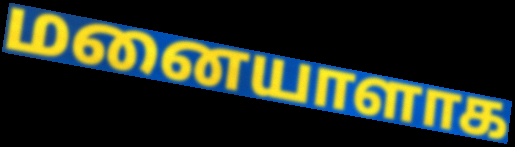
மனையாளாக